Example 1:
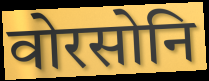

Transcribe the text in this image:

वोरसोनि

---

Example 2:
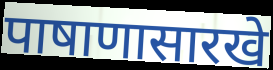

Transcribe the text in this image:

पाषाणासारखे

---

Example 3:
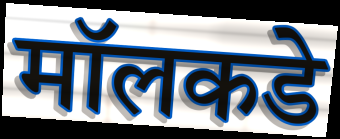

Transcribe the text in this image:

मॉलकडे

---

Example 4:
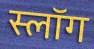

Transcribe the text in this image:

स्लॉग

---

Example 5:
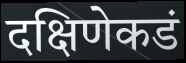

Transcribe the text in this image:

दक्षिणेकडं